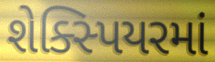
શેક્સ્પિયરમાં